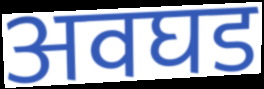
अवघड